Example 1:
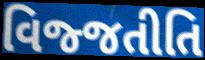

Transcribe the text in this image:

વિજ્જતીતિ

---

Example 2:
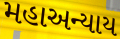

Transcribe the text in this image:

મહાઅન્યાય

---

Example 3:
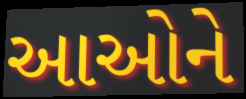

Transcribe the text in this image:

આઓને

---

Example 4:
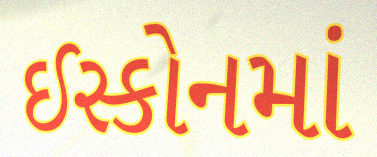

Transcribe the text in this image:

ઈસ્કોનમાં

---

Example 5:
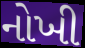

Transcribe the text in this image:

નોખી